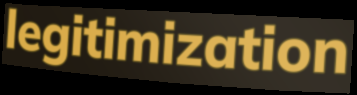
legitimization